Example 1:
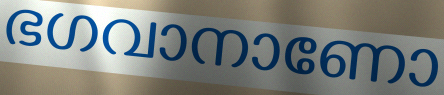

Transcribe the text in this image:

ഭഗവാനാണോ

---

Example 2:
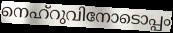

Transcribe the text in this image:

നെഹ്റുവിനോടൊപ്പം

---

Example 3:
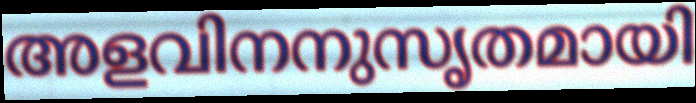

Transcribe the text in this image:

അളവിനനുസൃതമായി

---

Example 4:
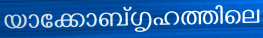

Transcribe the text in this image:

യാക്കോബ്ഗൃഹത്തിലെ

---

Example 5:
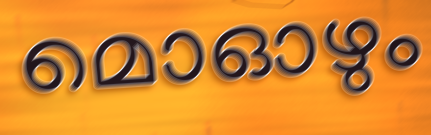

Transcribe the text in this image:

മൊഓഴും